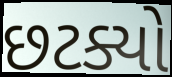
છટક્યો